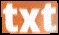
txt